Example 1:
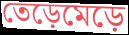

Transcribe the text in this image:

তেড়েমেড়ে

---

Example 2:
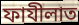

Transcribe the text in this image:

ফাযীলাত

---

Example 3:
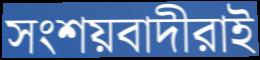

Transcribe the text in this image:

সংশয়বাদীরাই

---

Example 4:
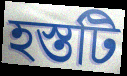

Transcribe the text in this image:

হস্তটি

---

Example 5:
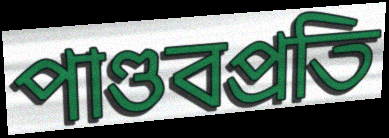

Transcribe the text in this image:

পাণ্ডবপ্রতি